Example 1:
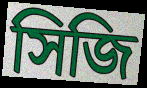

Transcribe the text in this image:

সিজি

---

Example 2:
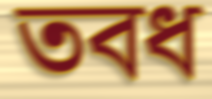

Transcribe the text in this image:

তবধ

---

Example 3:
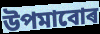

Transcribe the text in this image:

উপমাবোৰ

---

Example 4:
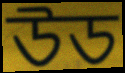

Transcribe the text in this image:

উড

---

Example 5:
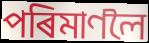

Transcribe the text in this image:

পৰিমাণলৈ